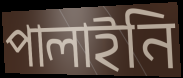
পালাইনি